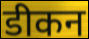
डीकन